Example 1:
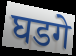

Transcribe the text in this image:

घडगे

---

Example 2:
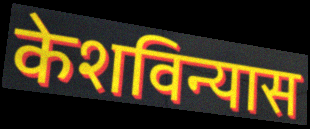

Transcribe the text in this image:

केशविन्यास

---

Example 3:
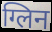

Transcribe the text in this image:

ग्लिन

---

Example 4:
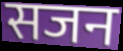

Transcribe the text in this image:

सजन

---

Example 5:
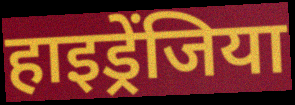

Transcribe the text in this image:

हाइड्रेंजिया